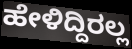
ಹೇಳಿದ್ದಿರಲ್ಲ